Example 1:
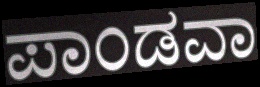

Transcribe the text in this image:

ಪಾಂಡವಾ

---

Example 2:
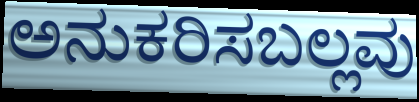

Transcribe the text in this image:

ಅನುಕರಿಸಬಲ್ಲವು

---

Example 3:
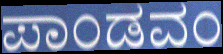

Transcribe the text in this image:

ಪಾಂಡವಂ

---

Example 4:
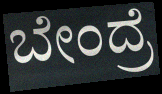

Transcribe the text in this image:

ಬೇಂದ್ರೆ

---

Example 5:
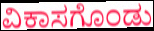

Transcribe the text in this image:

ವಿಕಾಸಗೊಂಡು